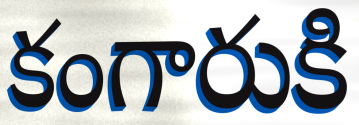
కంగారుకి